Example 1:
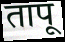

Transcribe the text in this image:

तापू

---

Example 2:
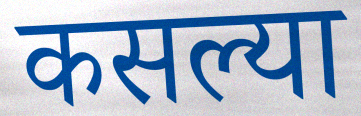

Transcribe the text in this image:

कसल्या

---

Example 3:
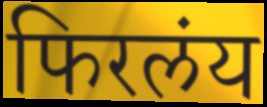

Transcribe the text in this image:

फिरलंय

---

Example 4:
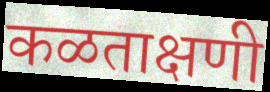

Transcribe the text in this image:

कळताक्षणी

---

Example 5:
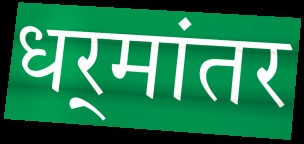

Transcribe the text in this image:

धर्मांतर